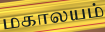
மகாலயம்